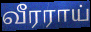
வீரராய்